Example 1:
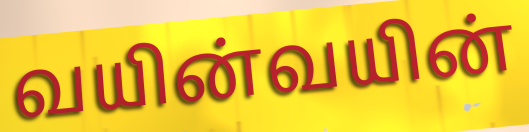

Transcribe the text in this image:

வயின்வயின்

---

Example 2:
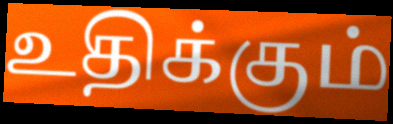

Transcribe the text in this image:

உதிக்கும்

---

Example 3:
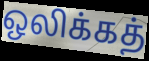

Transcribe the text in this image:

ஒலிக்கத்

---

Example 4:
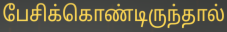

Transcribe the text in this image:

பேசிக்கொண்டிருந்தால்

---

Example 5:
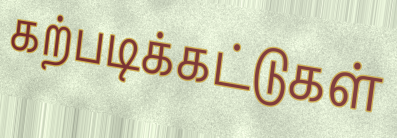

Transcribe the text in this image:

கற்படிக்கட்டுகள்